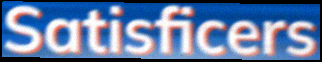
Satisficers